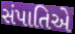
સંપાતિએ